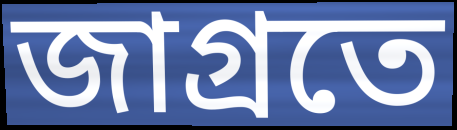
জাগ্রতে